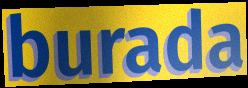
burada